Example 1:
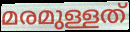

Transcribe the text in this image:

മരമുള്ളത്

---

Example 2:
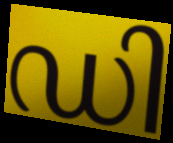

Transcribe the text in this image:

ഡി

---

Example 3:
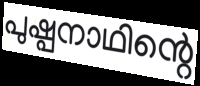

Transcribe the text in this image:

പുഷ്പനാഥിന്റെ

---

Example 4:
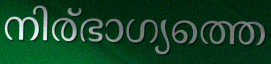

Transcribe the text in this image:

നിര്ഭാഗ്യത്തെ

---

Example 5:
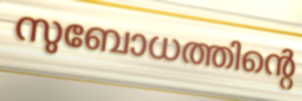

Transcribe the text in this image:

സുബോധത്തിന്റെ